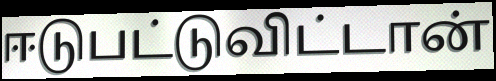
ஈடுபட்டுவிட்டான்